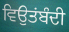
ਵਿਉਤਂਬੰਦੀ